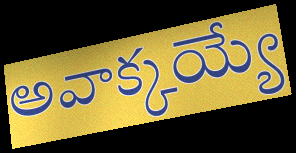
అవాక్కయ్యే